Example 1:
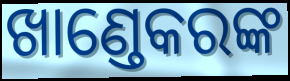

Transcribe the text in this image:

ଖାଣ୍ଡେକରଙ୍କ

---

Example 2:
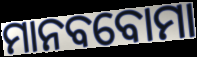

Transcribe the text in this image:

ମାନବବୋମା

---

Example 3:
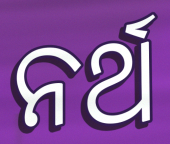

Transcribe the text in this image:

ନର୍ଥ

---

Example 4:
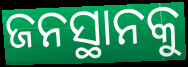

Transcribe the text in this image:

ଜନସ୍ଥାନକୁ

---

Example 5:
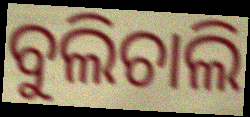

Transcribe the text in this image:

ବୁଲିଚାଲି